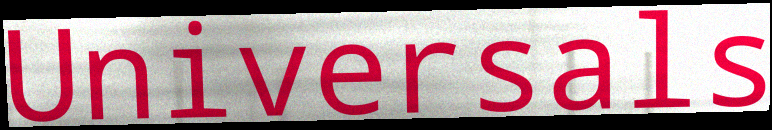
Universals